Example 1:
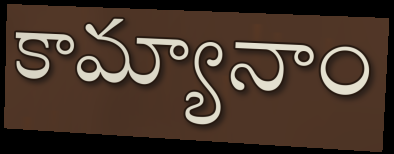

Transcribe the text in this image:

కామ్యానాం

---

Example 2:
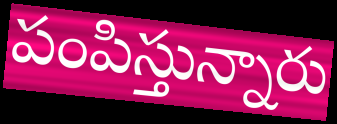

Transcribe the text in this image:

పంపిస్తున్నారు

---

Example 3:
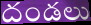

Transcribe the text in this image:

దండలు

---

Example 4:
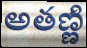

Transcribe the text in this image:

అతణ్ణి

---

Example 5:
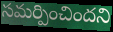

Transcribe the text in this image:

సమర్పించిందని